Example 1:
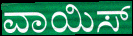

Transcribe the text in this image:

ವಾಯಿಸ್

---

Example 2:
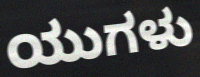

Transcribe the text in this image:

ಯುಗಳು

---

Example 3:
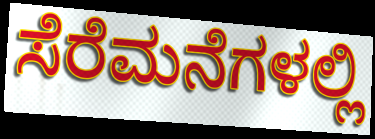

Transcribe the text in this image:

ಸೆರೆಮನೆಗಳಲ್ಲಿ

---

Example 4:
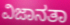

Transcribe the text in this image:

ವಿಜಾನತಾ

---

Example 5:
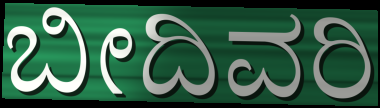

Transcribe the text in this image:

ಬೀದಿವರಿ